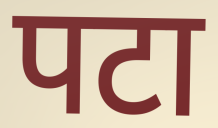
पटा